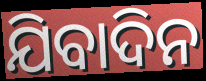
ଯିବାଦିନ